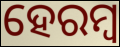
ହେରମ୍ୱ